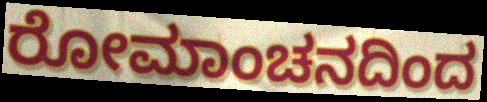
ರೋಮಾಂಚನದಿಂದ